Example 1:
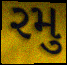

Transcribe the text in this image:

રમુ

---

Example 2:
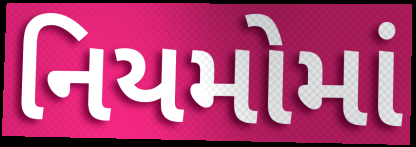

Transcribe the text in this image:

નિયમોમાં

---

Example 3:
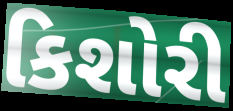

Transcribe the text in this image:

કિશોરી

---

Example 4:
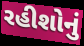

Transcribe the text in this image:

રહીશોનું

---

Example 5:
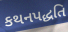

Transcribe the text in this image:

કથનપદ્ધતિ